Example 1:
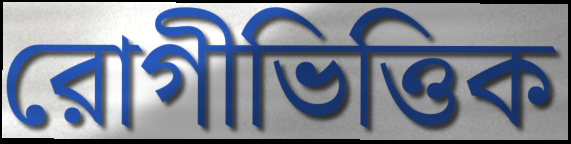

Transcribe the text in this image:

রোগীভিত্তিক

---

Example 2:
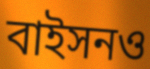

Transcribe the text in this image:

বাইসনও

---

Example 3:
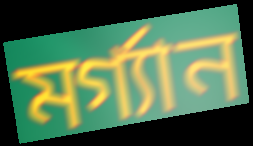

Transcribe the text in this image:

মর্গ্যান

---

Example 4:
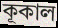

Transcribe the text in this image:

কূকাল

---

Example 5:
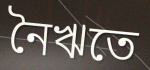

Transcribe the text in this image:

নৈঋতে